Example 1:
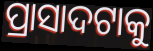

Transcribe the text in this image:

ପ୍ରାସାଦଟାକୁ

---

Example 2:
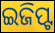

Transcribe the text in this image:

ଇଜିପ୍ଟ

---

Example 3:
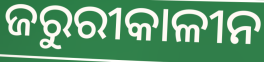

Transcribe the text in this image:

ଜରୁରୀକାଳୀନ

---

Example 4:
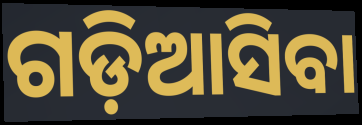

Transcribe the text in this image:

ଗଡ଼ିଆସିବା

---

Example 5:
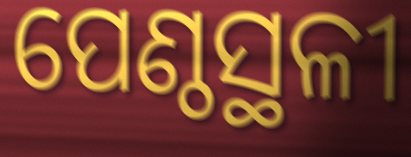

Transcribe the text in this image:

ପେଣ୍ଠସ୍ଥଳୀ